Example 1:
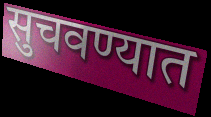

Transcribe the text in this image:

सुचवण्यात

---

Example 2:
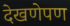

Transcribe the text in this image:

देखणेपण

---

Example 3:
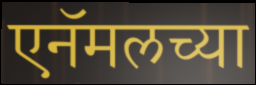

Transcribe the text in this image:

एनॅमलच्या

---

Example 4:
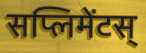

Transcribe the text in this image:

सप्लिमेंटस्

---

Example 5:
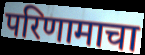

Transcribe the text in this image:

परिणामाचा